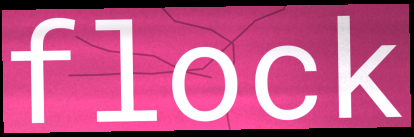
flock